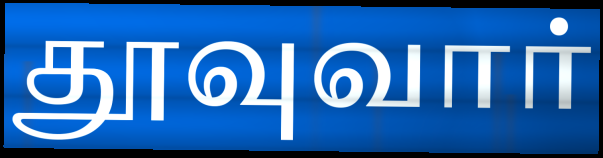
தூவுவார்